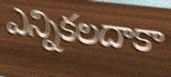
ఎన్నికలదాకా